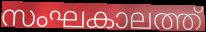
സംഘകാലത്ത്